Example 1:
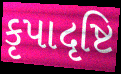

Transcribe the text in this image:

કૃપાદૃષ્ટિ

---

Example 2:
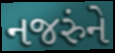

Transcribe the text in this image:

નજરુંને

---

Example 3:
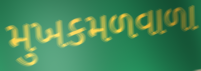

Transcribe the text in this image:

મુખકમળવાળા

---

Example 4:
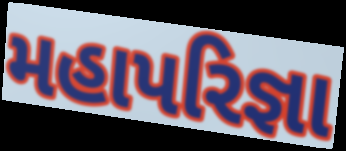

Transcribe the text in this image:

મહાપરિજ્ઞા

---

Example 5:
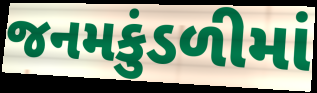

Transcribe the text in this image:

જનમકુંડળીમાં